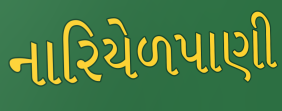
નારિયેળપાણી